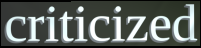
criticized